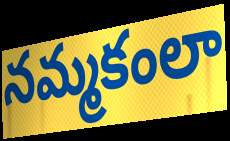
నమ్మకంలా